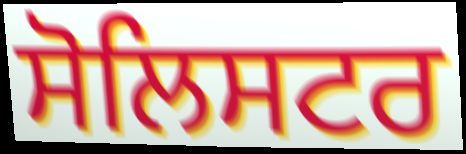
ਸੋਲਿਸਟਰ